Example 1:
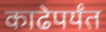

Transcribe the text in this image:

काढेपर्यंत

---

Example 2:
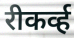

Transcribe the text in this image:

रीकर्व्ह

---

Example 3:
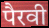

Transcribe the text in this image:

पैरवी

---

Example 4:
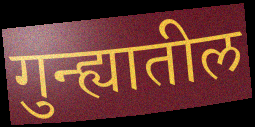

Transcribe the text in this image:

गुन्ह्यातील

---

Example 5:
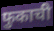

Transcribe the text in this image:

फुकाची